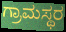
ಗ್ರಾಮಸ್ಥರ